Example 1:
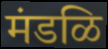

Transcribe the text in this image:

मंडळि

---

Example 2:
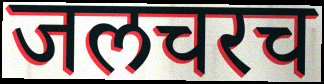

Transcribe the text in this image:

जलचरच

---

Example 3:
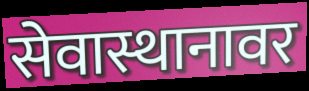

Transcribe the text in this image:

सेवास्थानावर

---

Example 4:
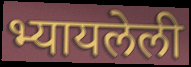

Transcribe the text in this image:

भ्यायलेली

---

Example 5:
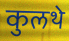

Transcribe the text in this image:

कुलथे